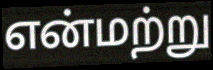
என்மற்று